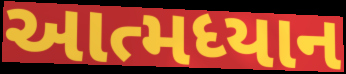
આત્મધ્યાન